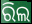
ରିଲ